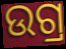
ଉଗ୍ର